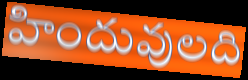
హిందువులది